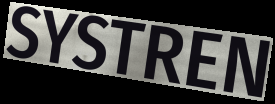
SYSTREN